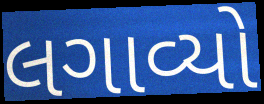
લગાવ્યો